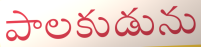
పాలకుడును